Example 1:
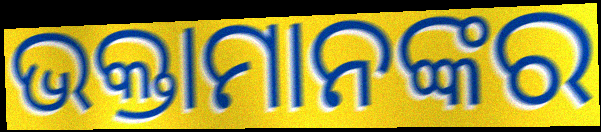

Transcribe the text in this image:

ଭକ୍ତାମାନଙ୍କର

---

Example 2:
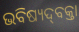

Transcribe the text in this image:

ଭବିଷ୍ୟଦ୍‌ବକ୍ତା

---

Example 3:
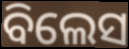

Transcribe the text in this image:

ବିଲେସ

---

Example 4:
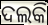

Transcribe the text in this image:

ଦଲକି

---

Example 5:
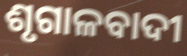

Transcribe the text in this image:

ଶୃଗାଳବାଦୀ